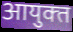
आयुक्‍त